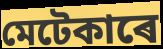
মেটেকাৰে